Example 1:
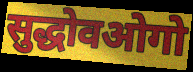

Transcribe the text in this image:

सुद्धोवओगो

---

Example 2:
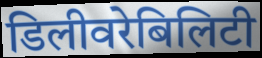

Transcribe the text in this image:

डिलीवरेबिलिटी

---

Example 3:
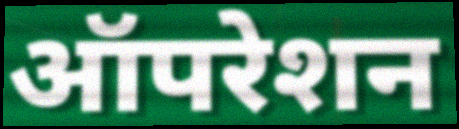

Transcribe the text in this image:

ऑपरेशन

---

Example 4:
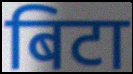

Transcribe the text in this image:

बिटा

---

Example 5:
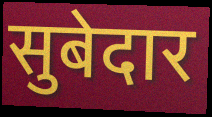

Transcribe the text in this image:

सुबेदार